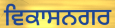
ਵਿਕਾਸਨਗਰ